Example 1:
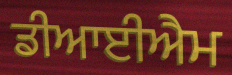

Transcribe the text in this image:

ਡੀਆਈਐਮ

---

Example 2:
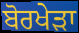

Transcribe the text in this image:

ਬੋਰਖੇੜਾ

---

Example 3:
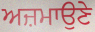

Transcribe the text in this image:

ਅਜ਼ਮਾਉਣੇ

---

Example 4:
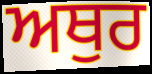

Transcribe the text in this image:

ਅਥੁਰ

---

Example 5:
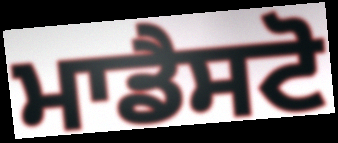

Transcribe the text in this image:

ਮਾਡੈਸਟੋ